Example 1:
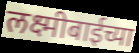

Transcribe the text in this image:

लक्ष्मीबाईच्या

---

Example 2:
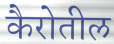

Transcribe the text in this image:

कैरोतील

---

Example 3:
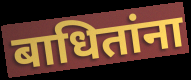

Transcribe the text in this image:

बाधितांना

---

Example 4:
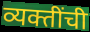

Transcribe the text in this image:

व्यक्‍तींची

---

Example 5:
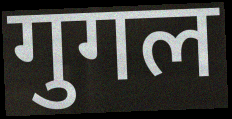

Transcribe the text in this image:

गुगल